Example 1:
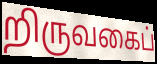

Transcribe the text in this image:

றிருவகைப்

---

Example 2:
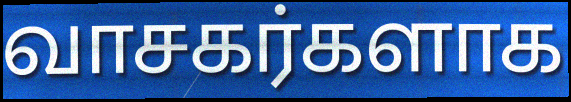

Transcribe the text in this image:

வாசகர்களாக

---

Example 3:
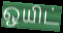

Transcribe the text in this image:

ஒயிட்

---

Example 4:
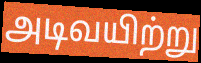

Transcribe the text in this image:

அடிவயிற்று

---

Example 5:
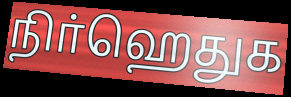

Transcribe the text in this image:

நிர்ஹெதுக